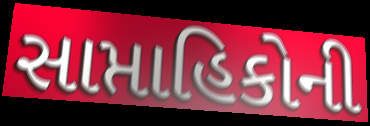
સાપ્તાહિકોની